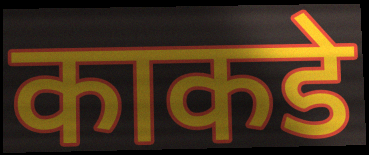
काकडे